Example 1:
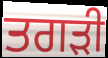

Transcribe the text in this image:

ਤਗੜੀ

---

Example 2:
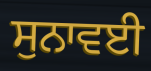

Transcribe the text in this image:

ਸੁਨਾਵਈ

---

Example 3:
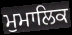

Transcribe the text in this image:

ਮੁਮਾਲਿਕ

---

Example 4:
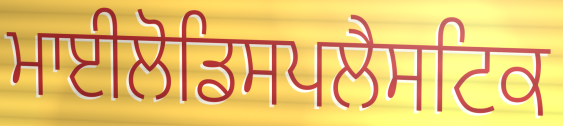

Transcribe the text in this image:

ਮਾਈਲੋਡਿਸਪਲੈਸਟਿਕ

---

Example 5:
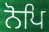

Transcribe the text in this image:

ਨੋਪਿ